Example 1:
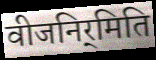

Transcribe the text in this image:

वीजनिर्मिति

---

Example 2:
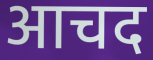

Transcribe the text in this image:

आचद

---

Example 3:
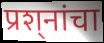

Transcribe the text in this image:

प्रश्नांचा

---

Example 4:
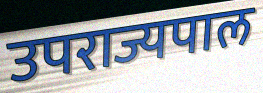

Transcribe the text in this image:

उपराज्यपाल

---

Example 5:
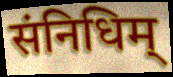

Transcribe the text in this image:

संनिधिम्